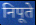
निपूते